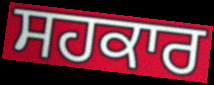
ਸਹਕਾਰ